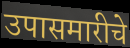
उपासमारीचे